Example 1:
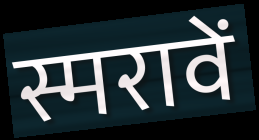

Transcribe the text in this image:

स्मरावें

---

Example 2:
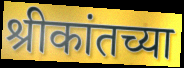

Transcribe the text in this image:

श्रीकांतच्या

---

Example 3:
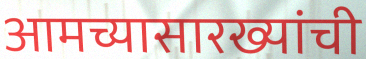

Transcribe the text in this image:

आमच्यासारख्यांची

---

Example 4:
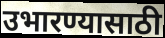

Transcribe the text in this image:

उभारण्यासाठी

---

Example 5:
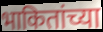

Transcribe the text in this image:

भाकितांच्या